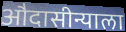
औदासीन्याला